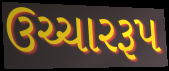
ઉચ્ચારરૂપ